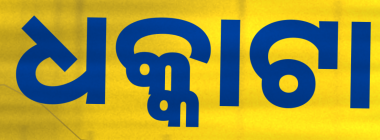
ଧକ୍କାଟା